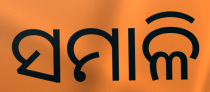
ସମାଳି